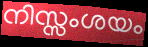
നിസ്സംശയം